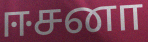
ஈசனா